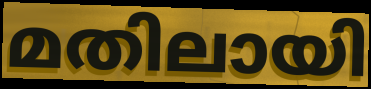
മതിലായി